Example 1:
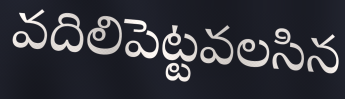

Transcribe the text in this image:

వదిలిపెట్టవలసిన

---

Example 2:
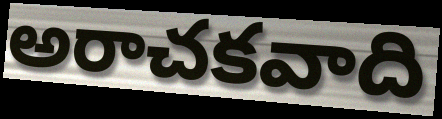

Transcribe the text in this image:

అరాచకవాది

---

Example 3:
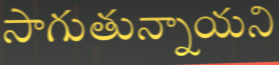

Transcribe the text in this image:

సాగుతున్నాయని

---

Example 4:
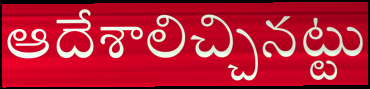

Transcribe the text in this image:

ఆదేశాలిచ్చినట్టు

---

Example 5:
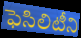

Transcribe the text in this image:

ఫెసిలిటీని